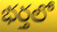
భర్తలో